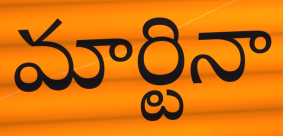
మార్టినా